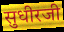
सुधीरजी